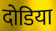
दोडिया